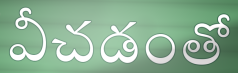
వీచడంతో